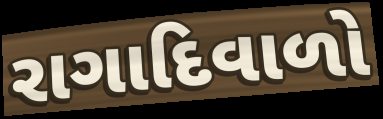
રાગાદિવાળો